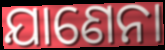
ଯାଣେନା